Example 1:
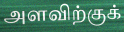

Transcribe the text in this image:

அளவிற்குக்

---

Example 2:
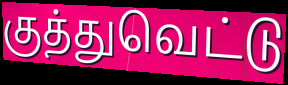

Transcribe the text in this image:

குத்துவெட்டு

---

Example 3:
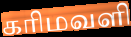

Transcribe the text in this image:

கரிமவளி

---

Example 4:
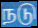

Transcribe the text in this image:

நடு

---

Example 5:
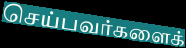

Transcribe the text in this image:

செய்பவர்களைக்